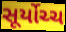
સૂર્યોચ્ચ